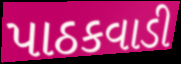
પાઠકવાડી